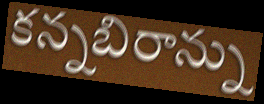
కన్నబిరాన్ను